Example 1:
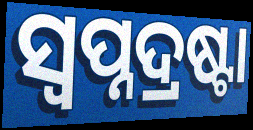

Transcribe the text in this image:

ସ୍ୱପ୍ନଦ୍ରଷ୍ଟା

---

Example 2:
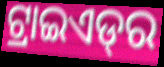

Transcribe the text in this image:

ଟ୍ରାଇଏଡ୍‌ର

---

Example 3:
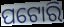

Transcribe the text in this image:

ପଟୋରି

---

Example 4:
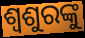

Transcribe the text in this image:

ଶ୍ୱଶୁରଙ୍କୁ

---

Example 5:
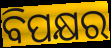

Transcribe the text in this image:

ବିପକ୍ଷର